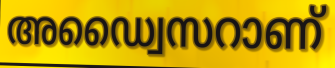
അഡ്വൈസറാണ്